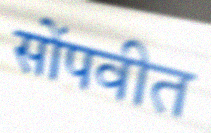
सोंपवीत